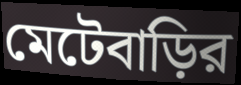
মেটেবাড়ির